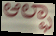
ಆಲ್ಫಾ